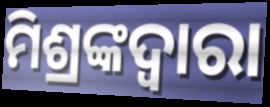
ମିଶ୍ରଙ୍କଦ୍ୱାରା